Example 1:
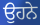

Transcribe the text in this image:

ਉਹਨੇ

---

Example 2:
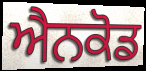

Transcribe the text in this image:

ਐਨਕੋਡ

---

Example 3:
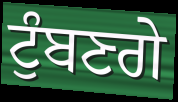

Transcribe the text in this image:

ਟੁੰਬਣਗੇ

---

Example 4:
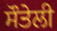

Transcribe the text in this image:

ਸੌਤੇਲੀ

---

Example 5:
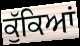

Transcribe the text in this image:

ਕੁੱਕਿਆਂ